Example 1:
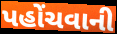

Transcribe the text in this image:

પહોંચવાની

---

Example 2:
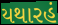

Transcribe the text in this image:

યથારહં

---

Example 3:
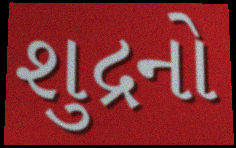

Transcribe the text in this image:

શુદ્રનો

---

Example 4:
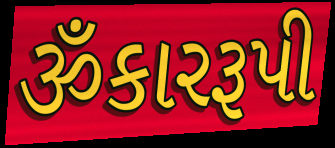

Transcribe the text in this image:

ૐકારરૂપી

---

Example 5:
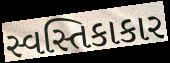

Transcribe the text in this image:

સ્વસ્તિકાકાર